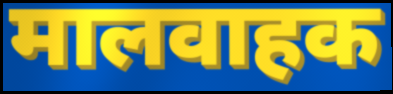
मालवाहक